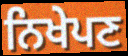
ਨਿਖੇਪਣ